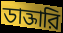
ডাক্তারি